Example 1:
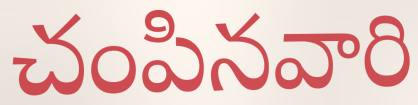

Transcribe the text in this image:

చంపినవారి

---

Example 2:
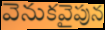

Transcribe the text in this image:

వెనుకవైపున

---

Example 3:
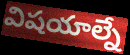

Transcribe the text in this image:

విషయాల్నే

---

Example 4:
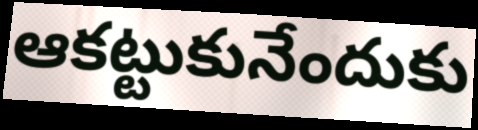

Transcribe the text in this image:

ఆకట్టుకునేందుకు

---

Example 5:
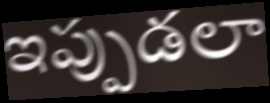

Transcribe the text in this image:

ఇప్పుడలా